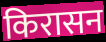
किरासन